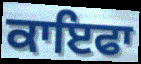
ਕਾਇਫਾ